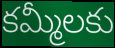
కమ్మీలకు